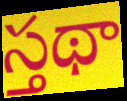
స్తథా